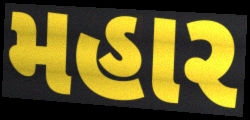
મહાર